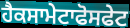
ਹੈਕਸਾਮੇਟਾਫੋਸਫੇਟ